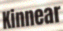
Kinnear